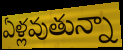
ఏళ్లవుతున్నా